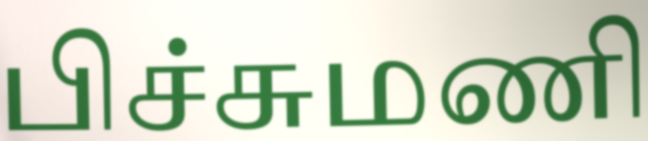
பிச்சுமணி